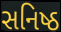
સનિષ્ઠ